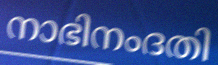
നാഭിനംദതി